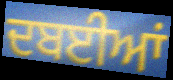
ਦਬਈਆਂ